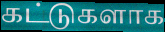
கட்டுகளாக